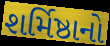
શર્મિષ્ઠાનો